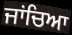
ਜਾਂਚਿਆ